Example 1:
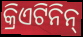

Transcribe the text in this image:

କ୍ରିଏଟିନିନ୍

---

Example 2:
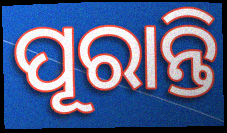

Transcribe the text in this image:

ପୂରାନ୍ତି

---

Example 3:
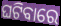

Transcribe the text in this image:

ଘଟିବାରେ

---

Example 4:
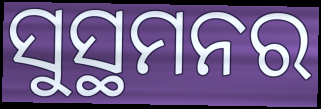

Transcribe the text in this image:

ସୁସ୍ଥମନର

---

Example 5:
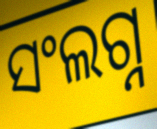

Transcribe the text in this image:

ସଂଲଗ୍ନ